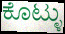
ಕೊಟ್ಳು